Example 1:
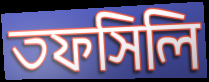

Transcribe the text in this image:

তফসিলি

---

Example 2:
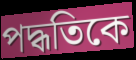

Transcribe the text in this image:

পদ্ধতিকে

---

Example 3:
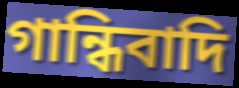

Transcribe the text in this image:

গান্ধিবাদি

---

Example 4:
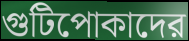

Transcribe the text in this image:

গুটিপোকাদের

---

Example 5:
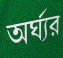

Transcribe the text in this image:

অর্ঘ্যর